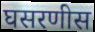
घसरणीस